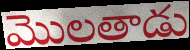
మొలతాడు